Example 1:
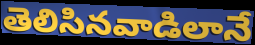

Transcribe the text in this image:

తెలిసినవాడిలానే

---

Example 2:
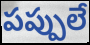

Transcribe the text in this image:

పప్పులే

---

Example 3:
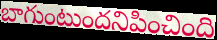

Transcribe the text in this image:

బాగుంటుందనిపించింది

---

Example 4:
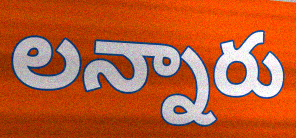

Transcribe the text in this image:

లన్నారు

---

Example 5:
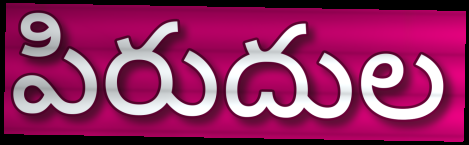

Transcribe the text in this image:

పిరుదుల